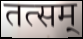
तत्सम्